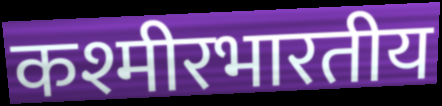
कश्मीरभारतीय